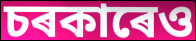
চৰকাৰেও